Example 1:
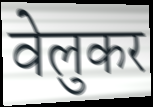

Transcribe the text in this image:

वेलुकर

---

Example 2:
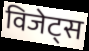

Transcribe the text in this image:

विजेट्स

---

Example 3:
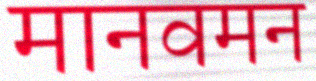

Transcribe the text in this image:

मानवमन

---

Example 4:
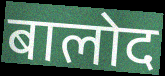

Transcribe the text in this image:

बालोद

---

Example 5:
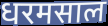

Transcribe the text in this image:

धरमसाल